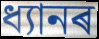
ধ্যানৰ